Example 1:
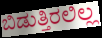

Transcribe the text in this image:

ಬಿಡುತ್ತಿರಲಿಲ್ಲ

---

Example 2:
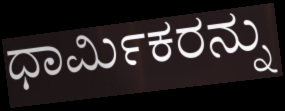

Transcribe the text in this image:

ಧಾರ್ಮಿಕರನ್ನು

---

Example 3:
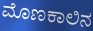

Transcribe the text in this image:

ಮೊಣಕಾಲಿನ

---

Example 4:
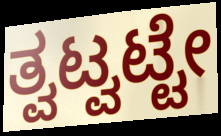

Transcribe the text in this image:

ತ್ವಟ್ವಟ್ಟೇ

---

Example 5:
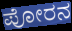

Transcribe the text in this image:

ಪೋರನ